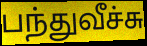
பந்துவீச்சு